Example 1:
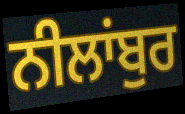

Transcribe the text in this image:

ਨੀਲਾਂਬੁਰ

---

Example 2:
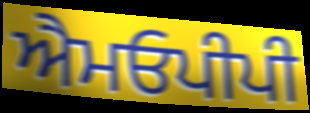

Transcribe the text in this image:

ਐਮਓਪੀਪੀ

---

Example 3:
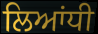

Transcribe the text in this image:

ਲਿਆਂਧੀ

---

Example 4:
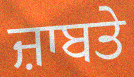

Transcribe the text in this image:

ਜ਼ਾਬਤੇ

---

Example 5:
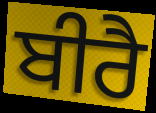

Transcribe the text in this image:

ਬੀਰੈ